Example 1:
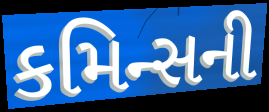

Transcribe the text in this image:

કમિન્સની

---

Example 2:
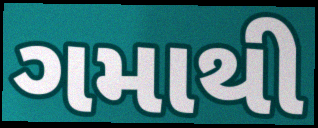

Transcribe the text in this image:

ગમાથી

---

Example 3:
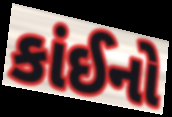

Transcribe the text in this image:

કાંઈનો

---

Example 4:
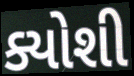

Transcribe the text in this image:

ક્યોશી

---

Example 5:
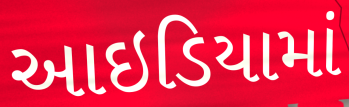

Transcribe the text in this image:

આઇડિયામાં